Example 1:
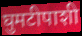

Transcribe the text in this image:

घुमटीपाशी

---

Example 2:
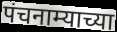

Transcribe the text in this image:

पंचनाम्याच्या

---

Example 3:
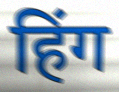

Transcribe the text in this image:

हिंग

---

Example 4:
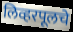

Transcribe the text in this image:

लिव्हरपूलचे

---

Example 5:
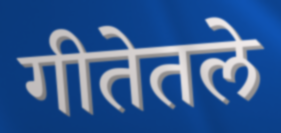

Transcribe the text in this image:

गीतेतले